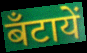
बँटायें